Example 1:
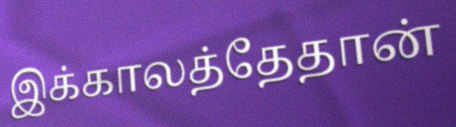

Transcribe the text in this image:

இக்காலத்தேதான்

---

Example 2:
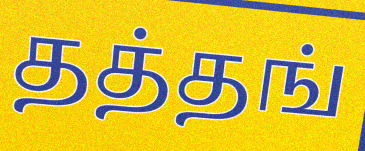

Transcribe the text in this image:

தத்தங்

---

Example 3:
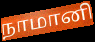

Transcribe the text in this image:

நாமானி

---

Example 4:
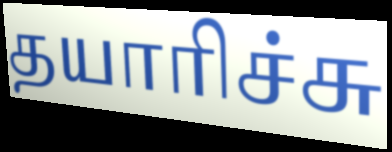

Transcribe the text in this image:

தயாரிச்சு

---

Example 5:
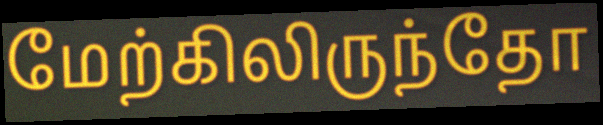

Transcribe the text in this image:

மேற்கிலிருந்தோ